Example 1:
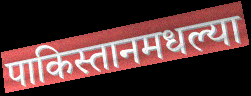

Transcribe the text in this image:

पाकिस्तानमधल्या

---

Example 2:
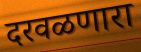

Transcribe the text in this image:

दरवळणारा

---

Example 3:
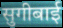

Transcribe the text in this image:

सुगीबाई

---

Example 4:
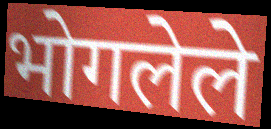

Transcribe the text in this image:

भोगलेले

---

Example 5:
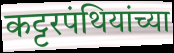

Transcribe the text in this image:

कट्टरपंथियांच्या